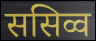
ससिव्व